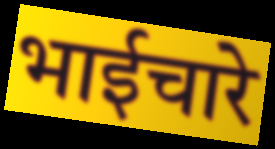
भाईचारे